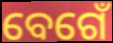
ବେଗେଁ